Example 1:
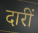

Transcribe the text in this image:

दारीं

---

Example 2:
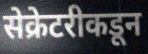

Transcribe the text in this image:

सेक्रेटरीकडून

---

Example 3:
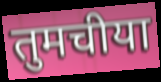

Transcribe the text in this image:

तुमचीया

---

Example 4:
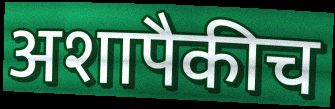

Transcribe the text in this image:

अशापैकीच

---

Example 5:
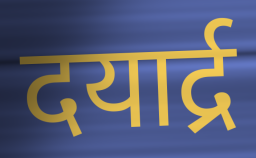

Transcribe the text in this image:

दयार्द्र